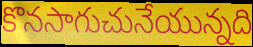
కొనసాగుచునేయున్నది